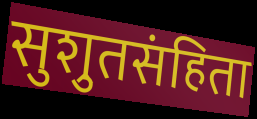
सुश्रुतसंहिता